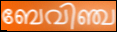
ബേവിഞ്ച